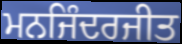
ਮਨਜਿੰਦਰਜੀਤ